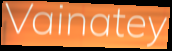
Vainatey